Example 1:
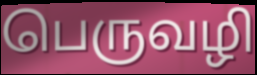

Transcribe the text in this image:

பெருவழி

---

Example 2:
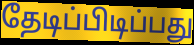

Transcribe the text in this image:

தேடிப்பிடிப்பது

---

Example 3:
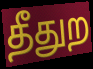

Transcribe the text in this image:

தீதுற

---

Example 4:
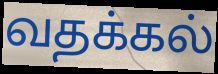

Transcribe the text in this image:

வதக்கல்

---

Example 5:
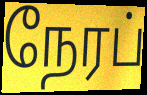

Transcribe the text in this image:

நேரப்